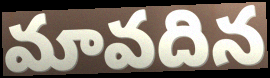
మావదిన